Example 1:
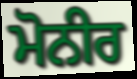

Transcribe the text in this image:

ਮੋਨੀਰ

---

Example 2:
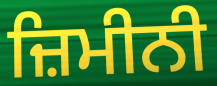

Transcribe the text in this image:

ਜ਼ਿਮੀਨੀ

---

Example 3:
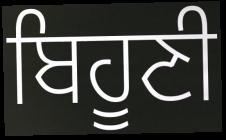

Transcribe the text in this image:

ਬਿਹੂਣੀ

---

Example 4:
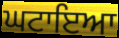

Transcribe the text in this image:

ਘਟਾਇਆ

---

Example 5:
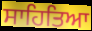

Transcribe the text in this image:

ਸਾਹਿਤਿਆ